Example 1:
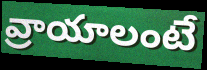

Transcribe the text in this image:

వ్రాయాలంటే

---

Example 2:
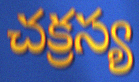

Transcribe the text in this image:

చక్రస్య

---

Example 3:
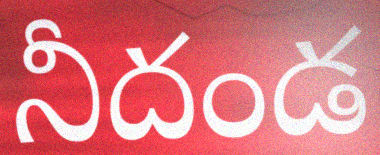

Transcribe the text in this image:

నీదండ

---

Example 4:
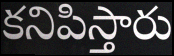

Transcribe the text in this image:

కనిపిస్తారు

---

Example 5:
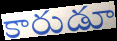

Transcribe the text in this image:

కారుడూ